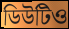
ডিউটিও